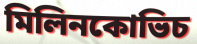
মিলিনকোভিচ